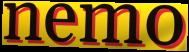
nemo